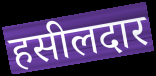
हसीलदार